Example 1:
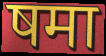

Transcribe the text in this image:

षमा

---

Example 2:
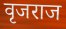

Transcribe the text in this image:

वृजराज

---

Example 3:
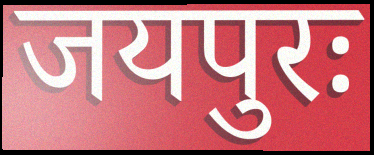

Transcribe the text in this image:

जयपुरः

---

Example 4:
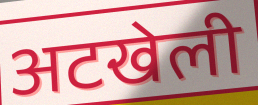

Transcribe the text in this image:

अटखेली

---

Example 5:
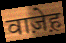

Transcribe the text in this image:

वाज़ेह़